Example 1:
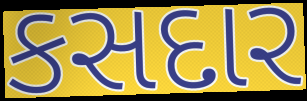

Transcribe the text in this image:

કસદાર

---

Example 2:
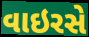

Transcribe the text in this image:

વાઇરસે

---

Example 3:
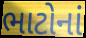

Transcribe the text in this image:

ભાટોનાં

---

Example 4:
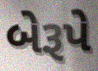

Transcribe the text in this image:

બેરૂપે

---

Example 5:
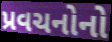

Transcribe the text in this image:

પ્રવચનોનો